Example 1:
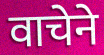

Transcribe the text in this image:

वाचेने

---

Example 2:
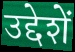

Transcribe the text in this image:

उद्देशें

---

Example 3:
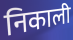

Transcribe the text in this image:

निकाली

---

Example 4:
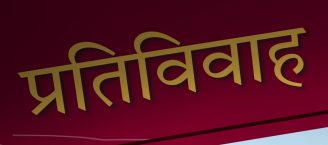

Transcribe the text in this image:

प्रतिविवाह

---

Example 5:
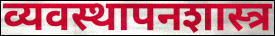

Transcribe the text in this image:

व्यवस्थापनशास्त्र